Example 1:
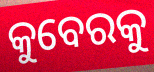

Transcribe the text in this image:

କୁବେରକୁ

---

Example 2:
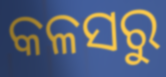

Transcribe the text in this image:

କଳସରୁ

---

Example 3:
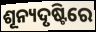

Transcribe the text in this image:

ଶୂନ୍ୟଦୃଷ୍ଟିରେ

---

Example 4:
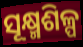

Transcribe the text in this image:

ସୂକ୍ଷ୍ମଶିଳ୍ପ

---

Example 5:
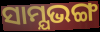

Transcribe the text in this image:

ସାମ୍ଯଭଙ୍ଗ